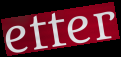
etter